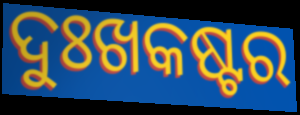
ଦୁଃଖକଷ୍ଟର